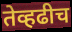
तेव्हढीच